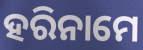
ହରିନାମେ